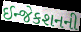
ઈન્જેકશનની